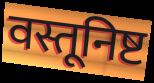
वस्तूनिष्ट